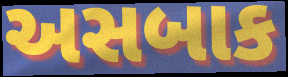
અસબાક